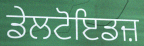
ਡੇਲਟੋਇਡਜ਼